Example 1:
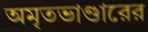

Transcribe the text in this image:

অমৃতভাণ্ডারের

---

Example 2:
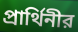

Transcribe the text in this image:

প্রার্থিনীর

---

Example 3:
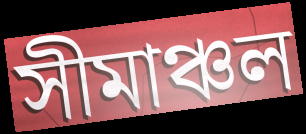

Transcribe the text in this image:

সীমাঞ্চল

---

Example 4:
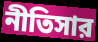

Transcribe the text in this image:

নীতিসার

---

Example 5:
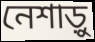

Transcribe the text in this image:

নেশাড়ু